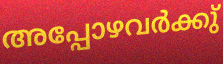
അപ്പോഴവർക്കു്